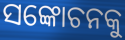
ସଙ୍କୋଚନକୁ